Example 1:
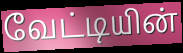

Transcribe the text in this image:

வேட்டியின்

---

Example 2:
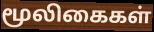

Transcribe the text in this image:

மூலிகைகள்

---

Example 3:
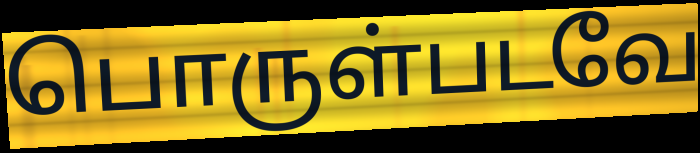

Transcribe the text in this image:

பொருள்படவே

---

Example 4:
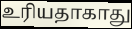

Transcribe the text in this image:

உரியதாகாது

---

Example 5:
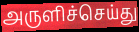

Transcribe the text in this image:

அருளிச்செய்து